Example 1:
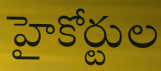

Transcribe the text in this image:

హైకోర్టుల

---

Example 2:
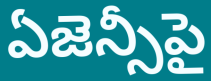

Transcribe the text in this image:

ఏజెన్సీపై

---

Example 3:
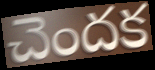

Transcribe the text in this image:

చెందక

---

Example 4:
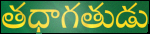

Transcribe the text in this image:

తధాగతుడు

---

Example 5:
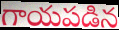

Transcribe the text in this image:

గాయపడిన